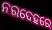
ନରଦେହରେ